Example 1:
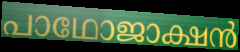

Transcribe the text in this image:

പാഥോജാക്ഷൻ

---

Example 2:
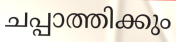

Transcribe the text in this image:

ചപ്പാത്തിക്കും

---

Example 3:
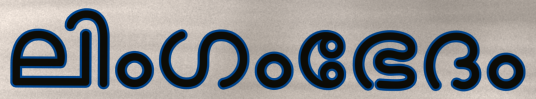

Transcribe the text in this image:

ലിംഗംഭേദം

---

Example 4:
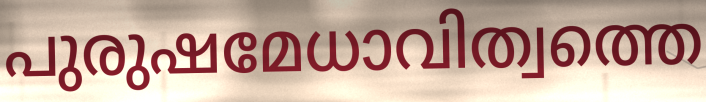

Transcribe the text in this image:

പുരുഷമേധാവിത്വത്തെ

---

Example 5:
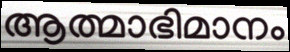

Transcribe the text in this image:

ആത്മാഭിമാനം